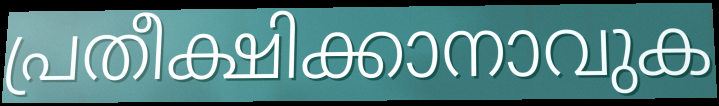
പ്രതീക്ഷിക്കാനാവുക